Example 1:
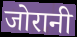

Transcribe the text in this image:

जोरानी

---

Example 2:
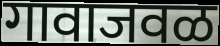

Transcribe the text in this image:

गावाजवळ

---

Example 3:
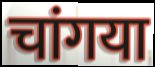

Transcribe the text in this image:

चांगया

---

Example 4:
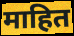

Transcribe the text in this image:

माहित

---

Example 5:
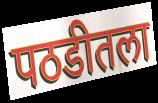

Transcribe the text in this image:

पठडीतला